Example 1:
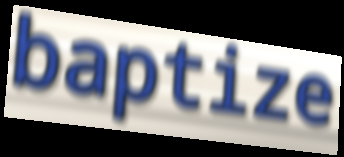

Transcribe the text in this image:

baptize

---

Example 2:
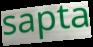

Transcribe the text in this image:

sapta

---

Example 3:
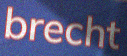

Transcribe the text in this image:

brecht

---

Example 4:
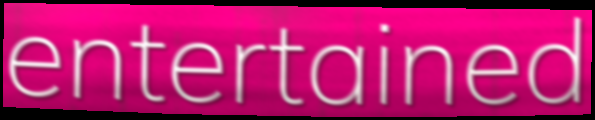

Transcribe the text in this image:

entertained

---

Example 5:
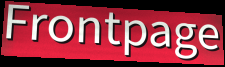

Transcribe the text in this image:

Frontpage